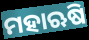
ମହାଋଷି